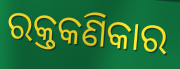
ରକ୍ତକଣିକାର